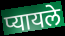
प्यायले